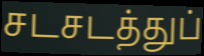
சடசடத்துப்